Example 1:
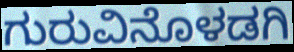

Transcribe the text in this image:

ಗುರುವಿನೊಳಡಗಿ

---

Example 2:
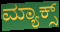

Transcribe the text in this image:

ಮ್ಯಾಕ್ಸ್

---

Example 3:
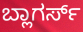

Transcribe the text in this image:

ಬ್ಲಾಗರ್ಸ್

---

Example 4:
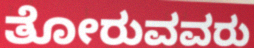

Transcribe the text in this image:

ತೋರುವವರು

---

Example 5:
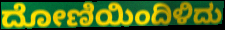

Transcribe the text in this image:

ದೋಣಿಯಿಂದಿಳಿದು